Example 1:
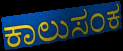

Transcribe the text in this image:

ಕಾಲುಸಂಕ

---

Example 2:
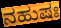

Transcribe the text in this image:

ನಹುಷಃ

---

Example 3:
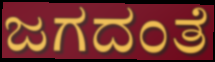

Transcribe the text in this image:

ಜಗದಂತೆ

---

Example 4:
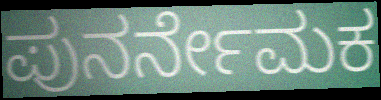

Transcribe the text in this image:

ಪುನರ್ನೇಮಕ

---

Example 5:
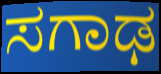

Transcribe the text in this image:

ಸಗಾಢ